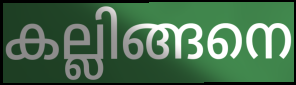
കല്ലിങ്ങനെ